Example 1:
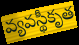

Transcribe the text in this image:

వ్యవస్థీకృత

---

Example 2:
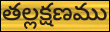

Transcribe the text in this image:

తల్లక్షణము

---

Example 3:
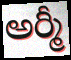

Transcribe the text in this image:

అర్మీ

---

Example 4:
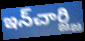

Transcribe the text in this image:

ఇన్‌చార్జ్జి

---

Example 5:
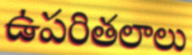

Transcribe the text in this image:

ఉపరితలాలు